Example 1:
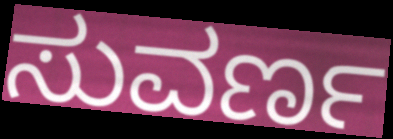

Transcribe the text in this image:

ಸುವರ್ಣ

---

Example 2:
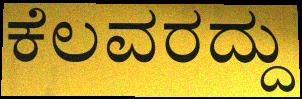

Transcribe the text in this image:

ಕೆಲವರದ್ದು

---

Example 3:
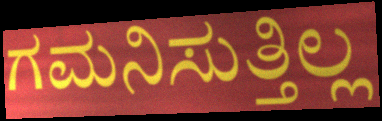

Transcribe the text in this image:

ಗಮನಿಸುತ್ತಿಲ್ಲ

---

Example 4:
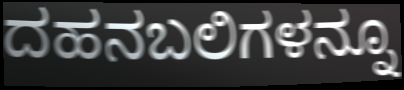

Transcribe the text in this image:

ದಹನಬಲಿಗಳನ್ನೂ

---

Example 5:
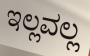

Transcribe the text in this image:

ಇಲ್ಲವಲ್ಲ